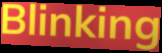
Blinking